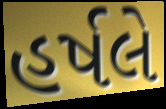
હર્ષલે